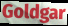
Goldgar